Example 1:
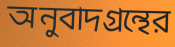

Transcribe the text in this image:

অনুবাদগ্রন্থের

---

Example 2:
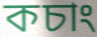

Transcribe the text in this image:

কচাং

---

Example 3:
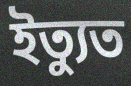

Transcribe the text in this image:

ইত্যুত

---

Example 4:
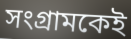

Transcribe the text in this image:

সংগ্রামকেই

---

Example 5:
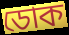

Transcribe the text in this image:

ডোক